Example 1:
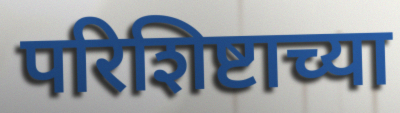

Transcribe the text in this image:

परिशिष्टाच्या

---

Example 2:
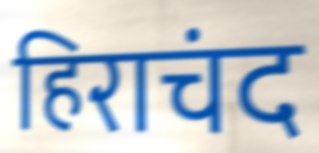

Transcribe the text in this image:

हिराचंद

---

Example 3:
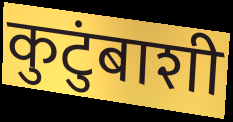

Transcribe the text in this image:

कुटुंबाशी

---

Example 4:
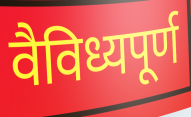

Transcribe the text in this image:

वैविध्यपूर्ण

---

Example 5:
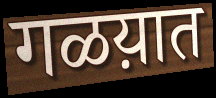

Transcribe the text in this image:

गळय़ात